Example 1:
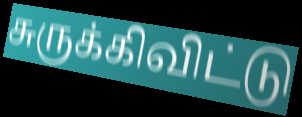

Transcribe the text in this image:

சுருக்கிவிட்டு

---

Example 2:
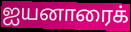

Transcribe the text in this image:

ஐயனாரைக்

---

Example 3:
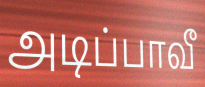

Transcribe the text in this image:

அடிப்பாவீ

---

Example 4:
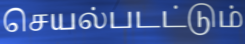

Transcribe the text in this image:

செயல்படட்டும்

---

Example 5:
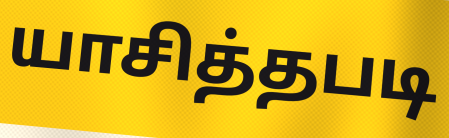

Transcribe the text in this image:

யாசித்தபடி